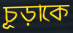
চূড়াকে